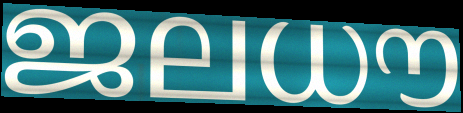
ജലധൗ